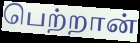
பெற்றான்